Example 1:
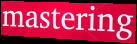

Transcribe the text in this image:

mastering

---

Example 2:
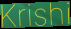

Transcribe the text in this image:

Krishi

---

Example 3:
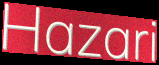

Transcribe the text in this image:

Hazari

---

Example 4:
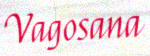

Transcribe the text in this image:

Vagosana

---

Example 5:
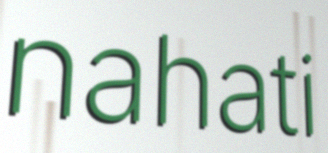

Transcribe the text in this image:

nahati